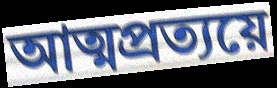
আত্মপ্রত্যয়ে